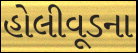
હોલીવૂડના